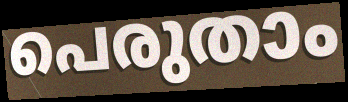
പെരുതാം